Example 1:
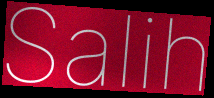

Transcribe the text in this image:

Salih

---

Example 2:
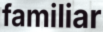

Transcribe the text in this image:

familiar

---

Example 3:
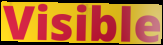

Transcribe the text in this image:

Visible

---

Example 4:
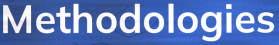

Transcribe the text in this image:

Methodologies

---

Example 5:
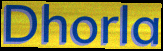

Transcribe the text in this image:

Dhorla